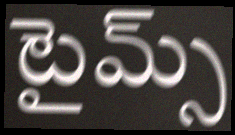
టైమ్స్